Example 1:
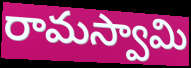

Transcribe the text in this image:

రామస్వామి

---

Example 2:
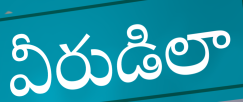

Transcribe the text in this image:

వీరుడిలా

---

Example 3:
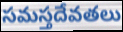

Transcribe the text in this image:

సమస్తదేవతలు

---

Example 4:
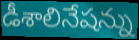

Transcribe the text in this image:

డీశాలినేషన్ను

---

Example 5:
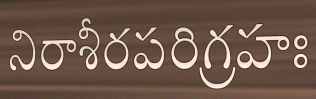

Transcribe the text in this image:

నిరాశీరపరిగ్రహః